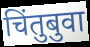
चिंतुबुवा